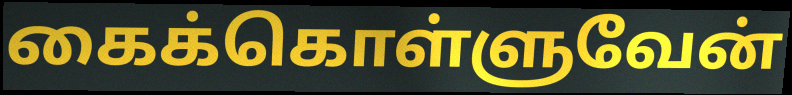
கைக்கொள்ளுவேன்